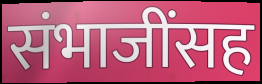
संभाजींसह